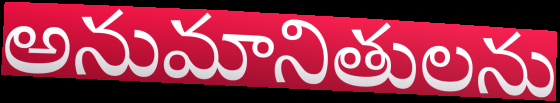
అనుమానితులను